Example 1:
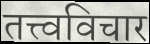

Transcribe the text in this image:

तत्त्वविचार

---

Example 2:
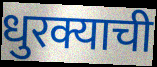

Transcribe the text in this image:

धुरक्याची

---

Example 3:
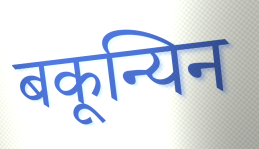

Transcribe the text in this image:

बकून्यिन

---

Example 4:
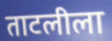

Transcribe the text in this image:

ताटलीला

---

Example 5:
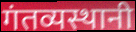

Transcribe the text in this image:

गंतव्यस्थानी